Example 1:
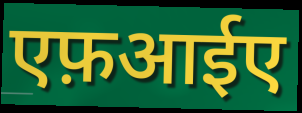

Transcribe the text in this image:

एफ़आईए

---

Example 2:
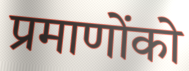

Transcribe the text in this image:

प्रमाणोंको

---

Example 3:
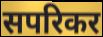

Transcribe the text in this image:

सपरिकर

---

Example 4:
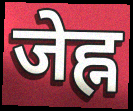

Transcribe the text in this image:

जेह्न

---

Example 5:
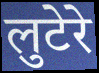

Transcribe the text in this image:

लुटेरे